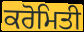
ਕਰੋਮਿਤੀ